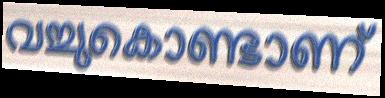
വച്ചുകൊണ്ടാണ്